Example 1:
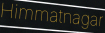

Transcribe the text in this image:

Himmatnagar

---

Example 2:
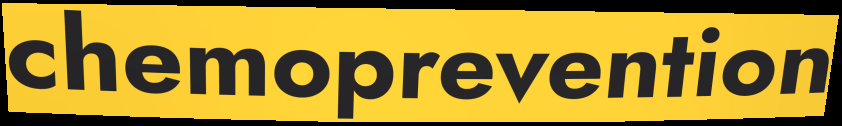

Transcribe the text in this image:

chemoprevention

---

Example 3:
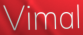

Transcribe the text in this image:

Vimal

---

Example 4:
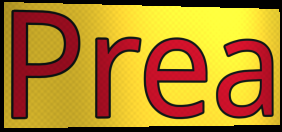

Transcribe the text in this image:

Prea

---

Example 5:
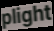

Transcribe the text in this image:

plight